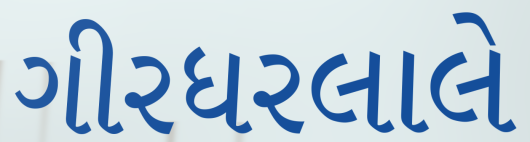
ગીરધરલાલે